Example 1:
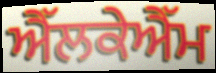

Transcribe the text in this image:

ਐੱਲਕੇਐੱਮ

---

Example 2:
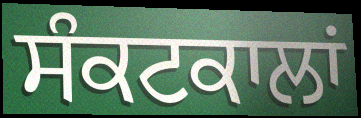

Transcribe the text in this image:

ਸੰਕਟਕਾਲਾਂ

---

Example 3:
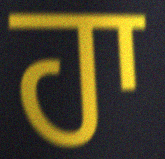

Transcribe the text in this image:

ਹਾ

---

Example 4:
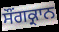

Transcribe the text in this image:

ਸੌਂਗਕ੍ਰਾਨ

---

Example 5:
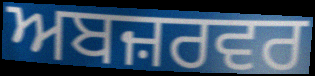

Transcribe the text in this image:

ਅਬਜ਼ਰਵਰ